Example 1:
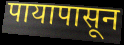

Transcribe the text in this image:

पायापासून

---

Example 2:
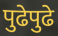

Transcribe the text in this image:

पुढेपुढे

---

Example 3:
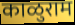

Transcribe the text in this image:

काळुराम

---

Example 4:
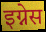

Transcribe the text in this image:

इग्नेस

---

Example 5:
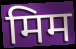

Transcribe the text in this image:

मिम